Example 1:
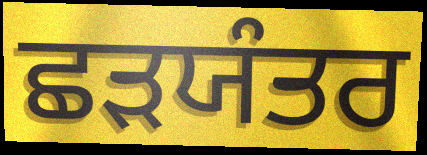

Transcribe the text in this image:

ਛੜਯੰਤਰ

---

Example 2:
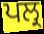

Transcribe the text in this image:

ਪਲ੍ਰ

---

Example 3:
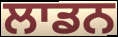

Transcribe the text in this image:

ਲਾਡਨ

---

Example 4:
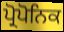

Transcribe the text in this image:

ਪ੍ਰੋਪੋਨਿਕ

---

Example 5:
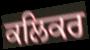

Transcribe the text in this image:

ਕਲਿਕਰ